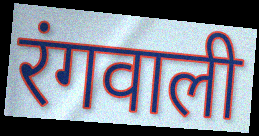
रंगवाली